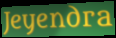
Jeyendra